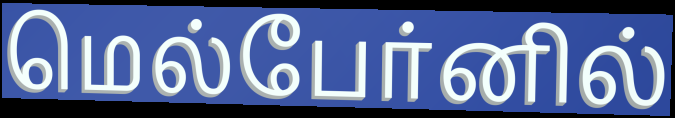
மெல்பேர்னில்